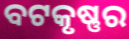
ବଟକୃଷ୍ଣର